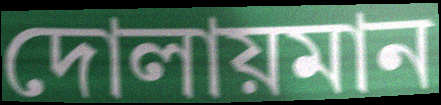
দোলায়মান